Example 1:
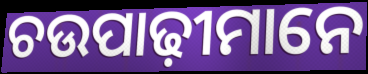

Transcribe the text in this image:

ଚଉପାଢ଼ୀମାନେ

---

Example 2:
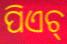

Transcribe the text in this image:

ପିଏଚ୍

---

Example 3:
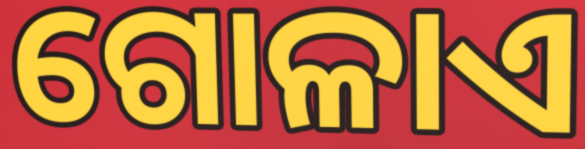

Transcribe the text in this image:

ଗୋଳାଏ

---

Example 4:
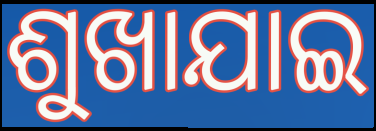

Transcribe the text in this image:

ଶୁଖାଯାଇ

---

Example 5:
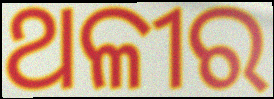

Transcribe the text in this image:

ଥଳୀର